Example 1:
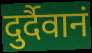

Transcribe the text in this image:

दुर्दैवानं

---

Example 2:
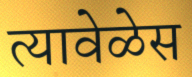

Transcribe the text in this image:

त्यावेळेस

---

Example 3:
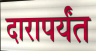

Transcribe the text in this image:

दारापर्यंत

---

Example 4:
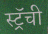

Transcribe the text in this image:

स्ट्रॅची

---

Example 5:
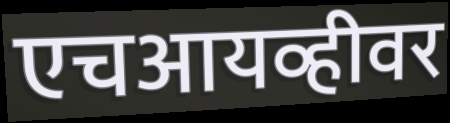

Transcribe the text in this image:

एचआयव्हीवर